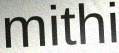
mithi